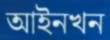
আইনখন